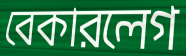
বেকারলেগ